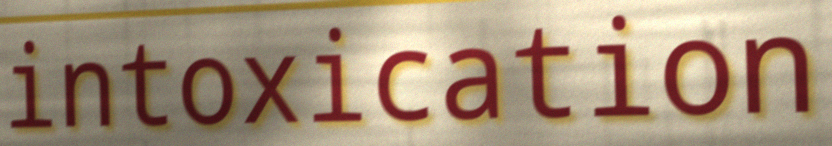
intoxication